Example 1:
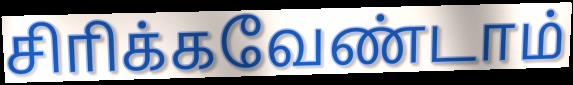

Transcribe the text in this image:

சிரிக்கவேண்டாம்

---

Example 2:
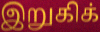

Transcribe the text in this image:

இறுகிக்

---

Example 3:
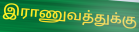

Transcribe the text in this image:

இராணுவத்துக்கு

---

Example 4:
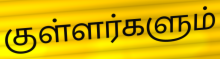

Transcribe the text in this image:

குள்ளர்களும்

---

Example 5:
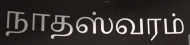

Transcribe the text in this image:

நாதஸ்வரம்